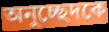
অনুচ্ছেদকে